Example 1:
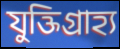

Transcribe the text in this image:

যুক্তিগ্রাহ্য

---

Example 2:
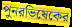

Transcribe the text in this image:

পুনরভিষেকের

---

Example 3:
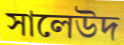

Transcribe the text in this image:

সালেউদ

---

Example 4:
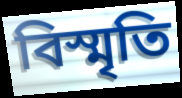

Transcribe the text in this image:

বিস্মৃতি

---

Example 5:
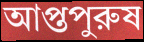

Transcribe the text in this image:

আপ্তপুরুষ